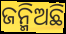
ଜନ୍ମିଅଛି